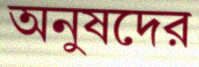
অনুষদের